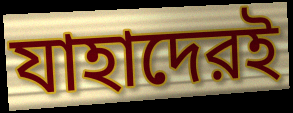
যাহাদেরই